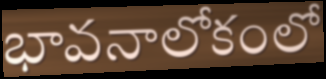
భావనాలోకంలో